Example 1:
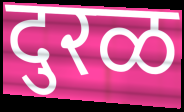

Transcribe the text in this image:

दुरळ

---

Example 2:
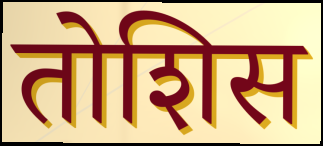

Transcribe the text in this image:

तोशिस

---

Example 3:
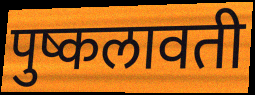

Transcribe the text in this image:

पुष्कलावती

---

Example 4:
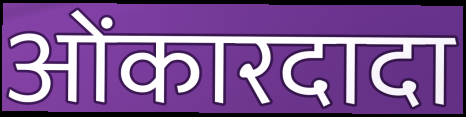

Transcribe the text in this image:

ओंकारदादा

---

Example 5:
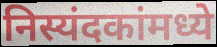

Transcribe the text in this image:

निस्यंदकांमध्ये